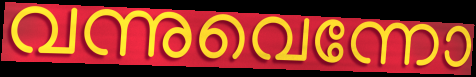
വന്നുവെന്നോ